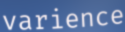
varience